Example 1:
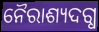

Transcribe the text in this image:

ନୈରାଶ୍ୟଦଗ୍ଧ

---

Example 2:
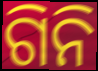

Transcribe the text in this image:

ଗିନି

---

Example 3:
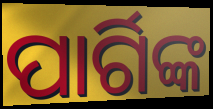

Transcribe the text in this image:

ପାର୍ଗିଙ୍କ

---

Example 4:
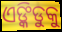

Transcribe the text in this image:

ଏଙ୍କିଡୁକୁ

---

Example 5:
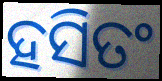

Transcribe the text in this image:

ହସିତଂ